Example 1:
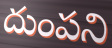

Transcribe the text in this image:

దుంపని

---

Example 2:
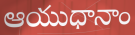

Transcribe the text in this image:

ఆయుధానాం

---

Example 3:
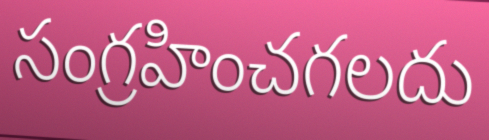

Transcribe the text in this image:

సంగ్రహించగలదు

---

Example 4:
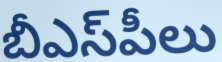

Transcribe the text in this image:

బీఎస్‌పీలు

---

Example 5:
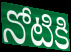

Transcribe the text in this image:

నోటికి